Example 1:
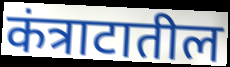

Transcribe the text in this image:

कंत्राटातील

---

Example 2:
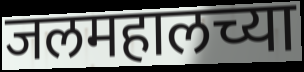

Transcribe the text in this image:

जलमहालच्या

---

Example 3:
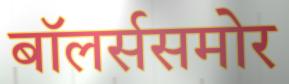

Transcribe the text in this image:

बॉलर्ससमोर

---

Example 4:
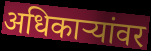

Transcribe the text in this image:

अधिकाऱ्यांवर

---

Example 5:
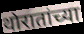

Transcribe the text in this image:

थोरातांच्या